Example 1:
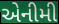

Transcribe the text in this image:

એનીમી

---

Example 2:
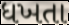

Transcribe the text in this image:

ધખતા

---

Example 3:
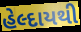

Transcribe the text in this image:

હેલ્દાયથી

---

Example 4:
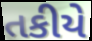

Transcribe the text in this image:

તકીયે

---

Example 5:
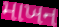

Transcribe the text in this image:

માખન